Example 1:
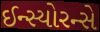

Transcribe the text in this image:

ઈન્સ્યોરન્સે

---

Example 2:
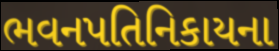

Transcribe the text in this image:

ભવનપતિનિકાયના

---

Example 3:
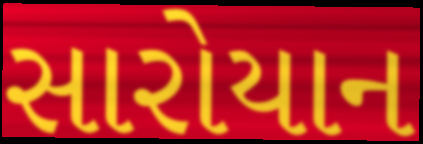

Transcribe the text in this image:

સારોયાન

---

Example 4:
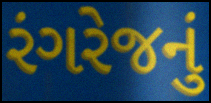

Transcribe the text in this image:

રંગરેજનું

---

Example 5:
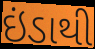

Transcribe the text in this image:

ઇંડાથી